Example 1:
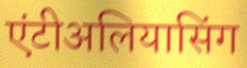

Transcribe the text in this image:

एंटीअलियासिंग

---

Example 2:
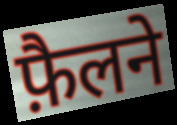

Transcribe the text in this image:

फ़ैलने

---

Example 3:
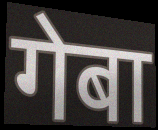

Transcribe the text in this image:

गेबा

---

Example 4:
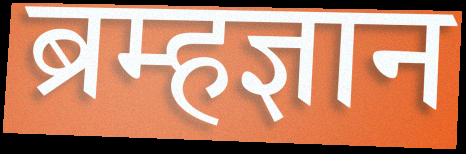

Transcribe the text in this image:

ब्रम्हज्ञान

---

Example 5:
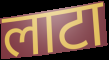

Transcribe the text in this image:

लाटा